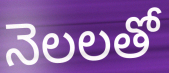
నెలలతో